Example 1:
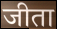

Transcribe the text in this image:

जीता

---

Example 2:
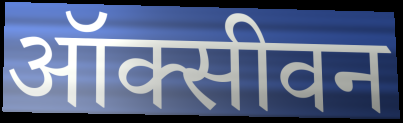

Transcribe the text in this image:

ऑक्सीवन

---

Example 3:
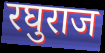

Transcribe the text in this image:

रघुराज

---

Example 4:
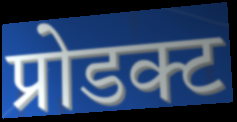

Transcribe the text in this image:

प्रोडक्ट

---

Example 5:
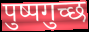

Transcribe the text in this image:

पुष्पगुच्छ